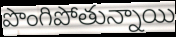
పొంగిపోతున్నాయి